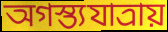
অগস্ত্যযাত্রায়